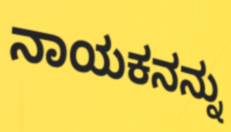
ನಾಯಕನನ್ನು